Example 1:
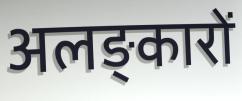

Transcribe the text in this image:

अलङ्कारों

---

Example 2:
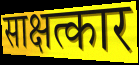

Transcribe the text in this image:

साक्षत्कार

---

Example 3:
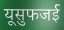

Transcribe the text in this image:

यूसुफजई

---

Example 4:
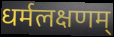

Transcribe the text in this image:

धर्मलक्षणम्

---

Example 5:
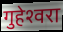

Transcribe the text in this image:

गुहेश्वरा